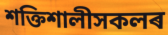
শক্তিশালীসকলৰ